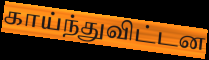
காய்ந்துவிட்டன